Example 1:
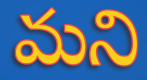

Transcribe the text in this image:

మని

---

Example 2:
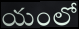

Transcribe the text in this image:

యంలో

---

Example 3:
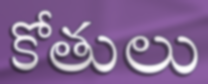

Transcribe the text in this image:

కోతులు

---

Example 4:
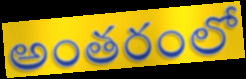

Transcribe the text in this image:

అంతరంలో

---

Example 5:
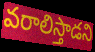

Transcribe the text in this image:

వరాలిస్తాడని